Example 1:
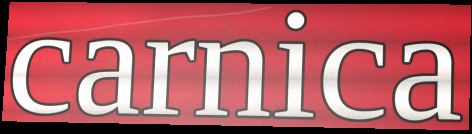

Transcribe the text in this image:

carnica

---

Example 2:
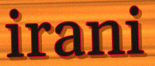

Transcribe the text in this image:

irani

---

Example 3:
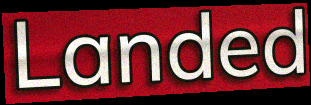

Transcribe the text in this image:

Landed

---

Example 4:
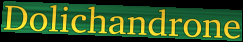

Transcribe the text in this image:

Dolichandrone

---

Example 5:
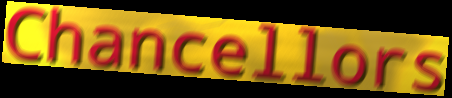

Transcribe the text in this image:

Chancellors